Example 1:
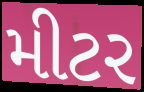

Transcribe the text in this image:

મીટર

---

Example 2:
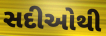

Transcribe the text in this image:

સદીઓથી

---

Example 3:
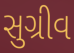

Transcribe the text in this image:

સુગ્રીવ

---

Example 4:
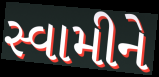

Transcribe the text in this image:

સ્વામીને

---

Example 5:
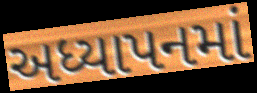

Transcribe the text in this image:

અધ્યાપનમાં